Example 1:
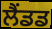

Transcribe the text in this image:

ਲੈਂਡਡ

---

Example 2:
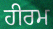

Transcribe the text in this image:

ਹੀਰਮ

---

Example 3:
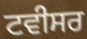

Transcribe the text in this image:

ਟਵੀਸਰ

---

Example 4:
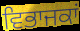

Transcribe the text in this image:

ਵਿਭਾਜਕਾਂ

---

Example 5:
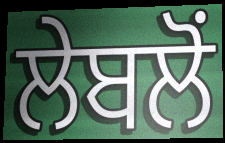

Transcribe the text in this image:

ਲੇਬਲੋਂ